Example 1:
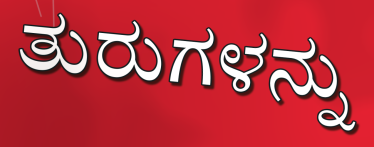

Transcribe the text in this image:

ತುರುಗಳನ್ನು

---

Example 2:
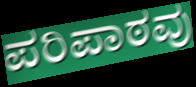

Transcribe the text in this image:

ಪರಿಪಾಠವು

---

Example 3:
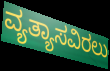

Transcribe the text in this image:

ವ್ಯತ್ಯಾಸವಿರಲು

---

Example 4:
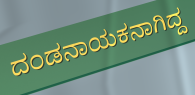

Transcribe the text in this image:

ದಂಡನಾಯಕನಾಗಿದ್ದ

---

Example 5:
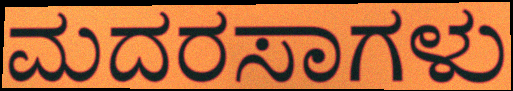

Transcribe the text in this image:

ಮದರಸಾಗಳು